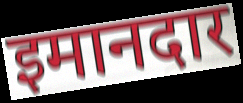
इमानदार